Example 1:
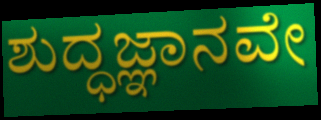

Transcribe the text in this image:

ಶುದ್ಧಜ್ಞಾನವೇ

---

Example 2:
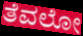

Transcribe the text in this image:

ತೆವಲೋ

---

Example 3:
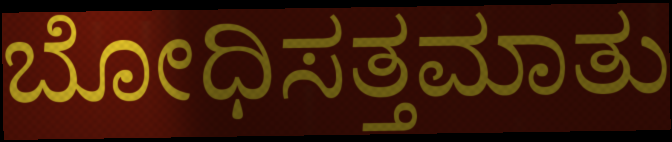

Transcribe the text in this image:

ಬೋಧಿಸತ್ತಮಾತು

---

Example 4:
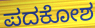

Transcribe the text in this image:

ಪದಕೋಶ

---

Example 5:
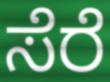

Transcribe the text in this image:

ಸೆರೆ